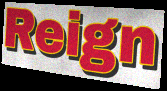
Reign